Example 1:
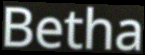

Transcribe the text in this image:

Betha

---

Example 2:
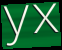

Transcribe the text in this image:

yx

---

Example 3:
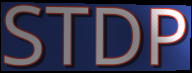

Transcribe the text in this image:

STDP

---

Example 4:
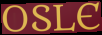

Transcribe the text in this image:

OSLE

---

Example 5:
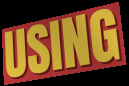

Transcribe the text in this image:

USING